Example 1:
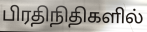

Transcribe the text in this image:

பிரதிநிதிகளில்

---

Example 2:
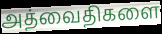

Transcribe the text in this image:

அத்வைதிகளை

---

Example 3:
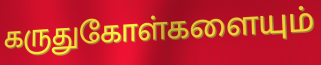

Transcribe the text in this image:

கருதுகோள்களையும்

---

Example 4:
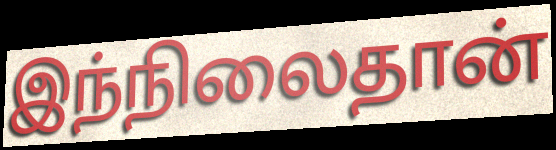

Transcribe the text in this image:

இந்நிலைதான்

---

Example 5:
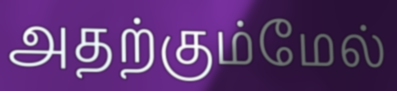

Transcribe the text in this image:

அதற்கும்மேல்